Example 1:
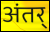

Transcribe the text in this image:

अंतर्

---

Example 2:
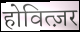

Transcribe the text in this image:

होवित्ज़र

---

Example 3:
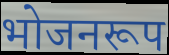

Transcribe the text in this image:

भोजनरूप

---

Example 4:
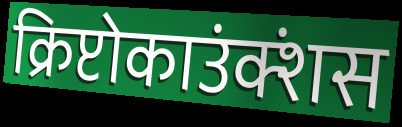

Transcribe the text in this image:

क्रिप्टोकाउंक्शंस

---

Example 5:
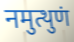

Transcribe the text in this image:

नमुत्थुणं